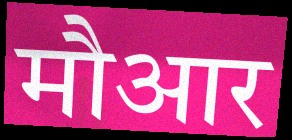
मौआर